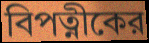
বিপত্নীকের